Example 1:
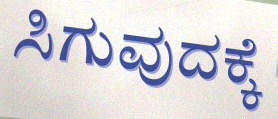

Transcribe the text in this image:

ಸಿಗುವುದಕ್ಕೆ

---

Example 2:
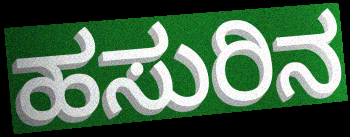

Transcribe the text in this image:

ಹಸುರಿನ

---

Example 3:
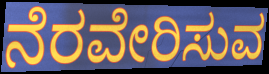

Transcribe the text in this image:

ನೆರವೇರಿಸುವ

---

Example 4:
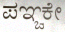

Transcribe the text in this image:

ಪಞ್ಚಕೇ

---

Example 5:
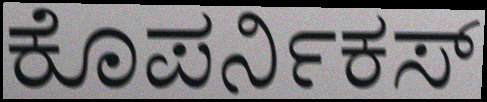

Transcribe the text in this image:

ಕೊಪರ್ನಿಕಸ್